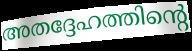
അതദ്ദേഹത്തിന്റെ